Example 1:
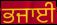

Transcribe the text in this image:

ਭਜਾਈ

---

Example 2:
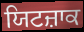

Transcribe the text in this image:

ਯਿਟਜ਼ਾਕ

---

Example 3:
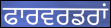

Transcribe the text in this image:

ਫਾਰਵਰਡਰਾਂ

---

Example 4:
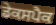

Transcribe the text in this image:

ਡੇਕਸਪੈਕ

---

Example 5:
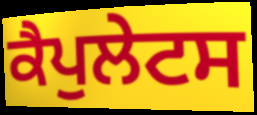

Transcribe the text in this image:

ਕੈਪੁਲੇਟਸ